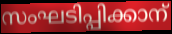
സംഘടിപ്പിക്കാന്